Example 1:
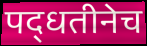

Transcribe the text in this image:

पद्धतीनेच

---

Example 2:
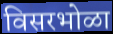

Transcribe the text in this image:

विसरभोळा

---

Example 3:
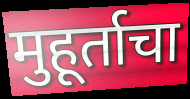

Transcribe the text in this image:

मुहूर्ताचा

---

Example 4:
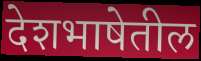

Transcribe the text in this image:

देशभाषेतील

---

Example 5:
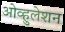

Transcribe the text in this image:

ओव्हुलेशन